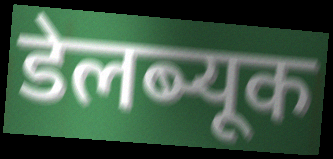
डेलब्ऱ्यूक